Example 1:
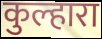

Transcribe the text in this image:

कुल्हारा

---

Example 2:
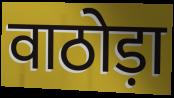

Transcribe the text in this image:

वाठोड़ा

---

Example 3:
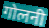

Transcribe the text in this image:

गोलनी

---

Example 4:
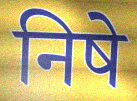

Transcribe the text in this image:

निषे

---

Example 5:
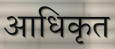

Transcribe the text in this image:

आधिकृत